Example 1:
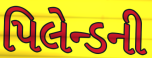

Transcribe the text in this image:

પિલેન્ડની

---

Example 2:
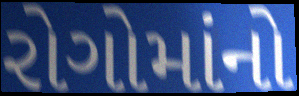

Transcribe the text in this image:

રોગોમાંનો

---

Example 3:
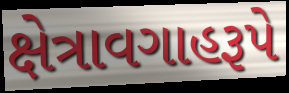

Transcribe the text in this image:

ક્ષેત્રાવગાહરૂપે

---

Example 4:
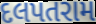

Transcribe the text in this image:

દલપતરામ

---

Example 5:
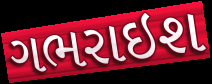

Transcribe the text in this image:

ગભરાઇશ